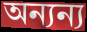
অন্যন্য